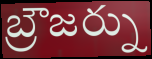
బ్రౌజర్ను